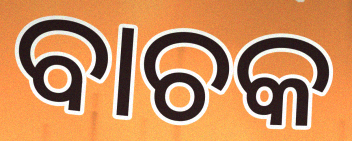
ବାଚକ